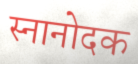
स्नानोदक